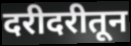
दरीदरीतून